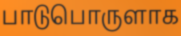
பாடுபொருளாக